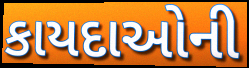
કાયદાઓની